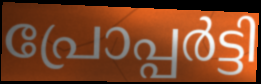
പ്രോപ്പർട്ടി